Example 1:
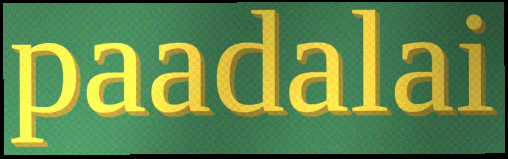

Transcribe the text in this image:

paadalai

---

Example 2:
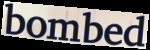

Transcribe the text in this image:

bombed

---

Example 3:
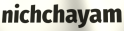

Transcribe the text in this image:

nichchayam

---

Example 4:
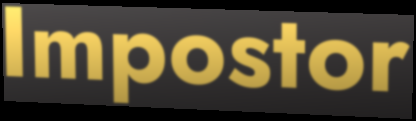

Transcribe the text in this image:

Impostor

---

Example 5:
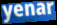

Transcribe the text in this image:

yenar